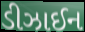
ડીઝાઈન